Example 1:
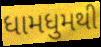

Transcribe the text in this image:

ધામધુમથી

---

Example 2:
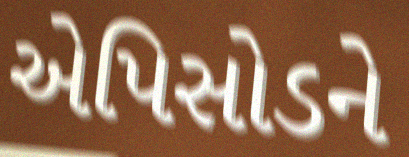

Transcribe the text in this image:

એપિસોડને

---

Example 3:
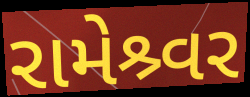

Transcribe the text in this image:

રામેશ્ર્વર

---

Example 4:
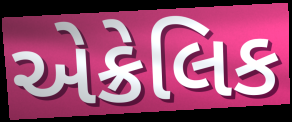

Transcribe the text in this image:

એક્રેલિક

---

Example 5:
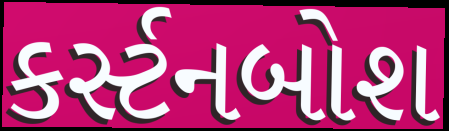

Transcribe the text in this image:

કર્સ્ટનબોશ